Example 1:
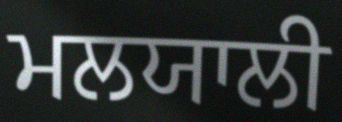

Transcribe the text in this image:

ਮਲਯਾਲੀ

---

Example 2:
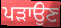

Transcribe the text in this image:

ਪੜਾਉਣ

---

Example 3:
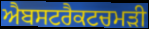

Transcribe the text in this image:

ਐਬਸਟਰੈਕਟਚਮੜੀ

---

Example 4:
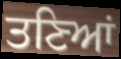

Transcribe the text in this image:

ਤਣਿਆਂ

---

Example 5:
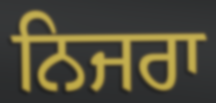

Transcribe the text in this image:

ਨਿਜਰਾ